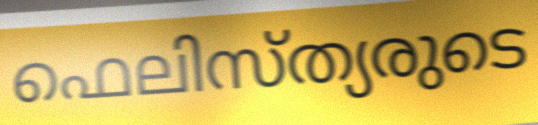
ഫെലിസ്ത്യരുടെ